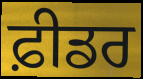
ਫ਼ੀਡਰ